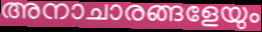
അനാചാരങ്ങളേയും